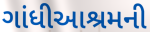
ગાંધીઆશ્રમની